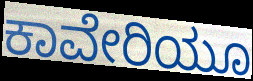
ಕಾವೇರಿಯೂ